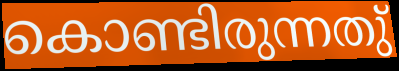
കൊണ്ടിരുന്നതു്